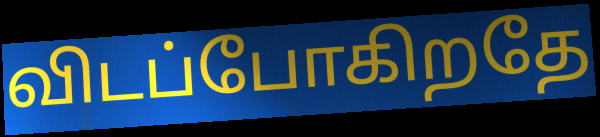
விடப்போகிறதே